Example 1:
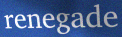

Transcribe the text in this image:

renegade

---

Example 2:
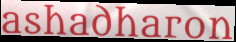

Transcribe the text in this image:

ashadharon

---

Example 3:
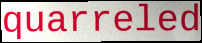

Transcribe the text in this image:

quarreled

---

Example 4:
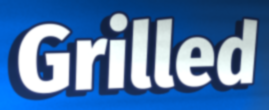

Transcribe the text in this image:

Grilled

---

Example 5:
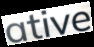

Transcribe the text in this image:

ative